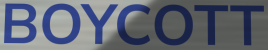
BOYCOTT